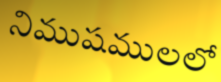
నిముషములలో